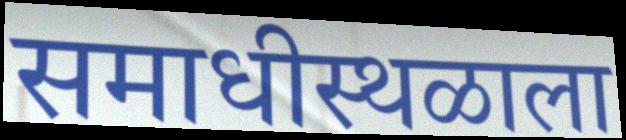
समाधीस्थळाला